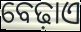
ବେଢ଼ାଏ